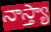
నాస్త్యా